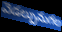
వెడల్పునుగల